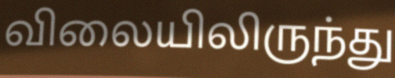
விலையிலிருந்து